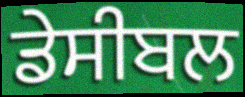
ਡੇਸੀਬਲ